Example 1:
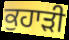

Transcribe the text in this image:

ਕੁਹਾੜੀ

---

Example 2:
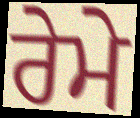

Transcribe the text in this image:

ਰੇਮੇ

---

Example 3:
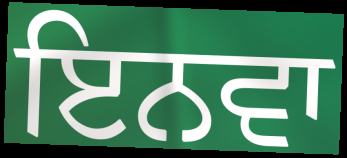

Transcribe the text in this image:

ਇਨਵਾ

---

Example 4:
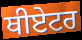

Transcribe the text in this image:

ਥੀਏਟਰ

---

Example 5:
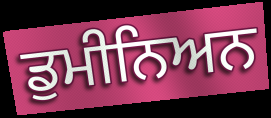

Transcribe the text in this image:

ਡੁਮੀਨਿਅਨ